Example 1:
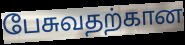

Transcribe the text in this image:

பேசுவதற்கான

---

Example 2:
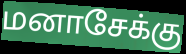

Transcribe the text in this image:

மனாசேக்கு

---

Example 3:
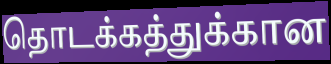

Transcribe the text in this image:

தொடக்கத்துக்கான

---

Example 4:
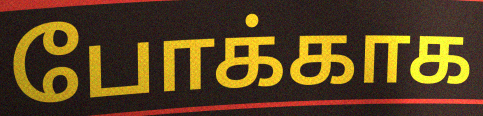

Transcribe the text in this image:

போக்காக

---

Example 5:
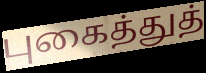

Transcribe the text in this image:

புகைத்துத்